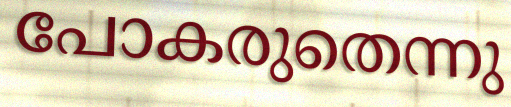
പോകരുതെന്നു